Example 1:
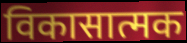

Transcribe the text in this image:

विकासात्मक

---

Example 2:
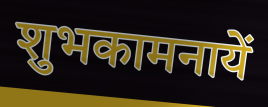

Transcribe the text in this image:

शुभकामनायें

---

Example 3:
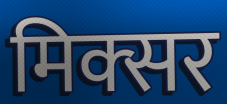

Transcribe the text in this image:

मिक्‍सर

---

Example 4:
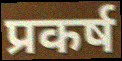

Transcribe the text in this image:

प्रकर्ष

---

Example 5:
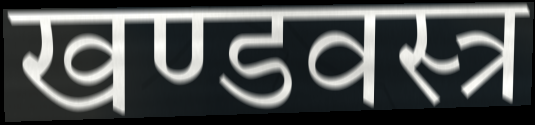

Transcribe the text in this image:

खण्डवस्त्र